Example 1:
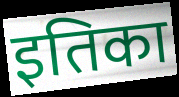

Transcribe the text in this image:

इतिका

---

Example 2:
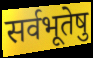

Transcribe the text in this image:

सर्वभूतेषु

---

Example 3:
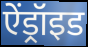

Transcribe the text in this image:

ऐंड्रॉइड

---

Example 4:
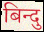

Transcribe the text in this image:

बिन्दु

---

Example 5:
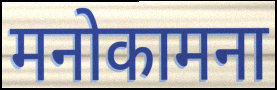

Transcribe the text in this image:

मनोकामना